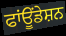
ਫਾਂਊਂਡੇਸ਼ਨ